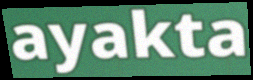
ayakta